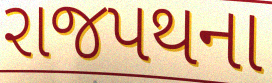
રાજપથના